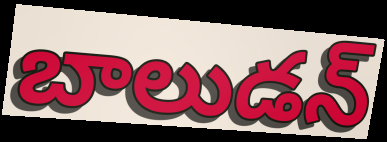
బాలుడన్